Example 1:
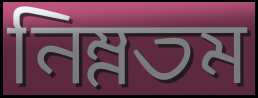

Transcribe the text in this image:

নিম্নতম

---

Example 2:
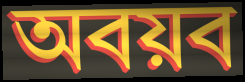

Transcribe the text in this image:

অবয়ব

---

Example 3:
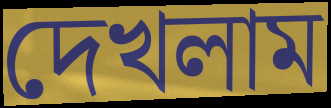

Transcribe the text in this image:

দেখলাম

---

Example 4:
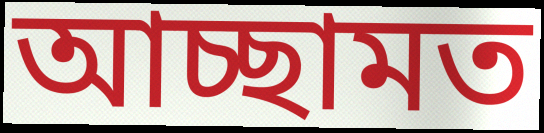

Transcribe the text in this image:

আচ্ছামত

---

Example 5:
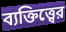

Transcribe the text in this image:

ব্যক্তিত্ত্বের